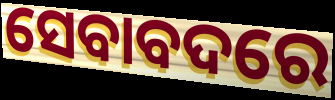
ସେବାବଦରେ